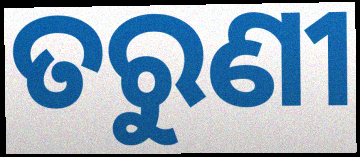
ତରୁଣୀ